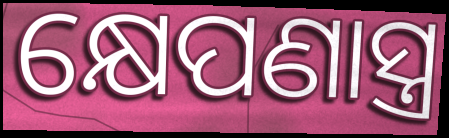
କ୍ଷେପଣାସ୍ତ୍ର